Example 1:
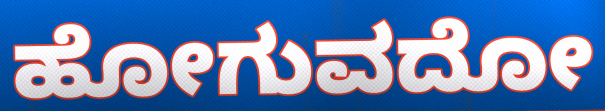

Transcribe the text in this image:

ಹೋಗುವದೋ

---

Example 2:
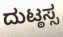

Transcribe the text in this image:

ದುಟ್ಠಸ್ಸ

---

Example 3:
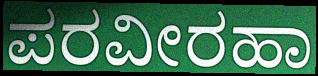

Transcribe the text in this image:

ಪರವೀರಹಾ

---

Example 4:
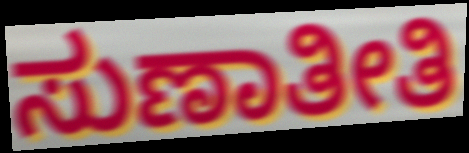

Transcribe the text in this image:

ಸುಣಾತೀತಿ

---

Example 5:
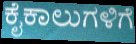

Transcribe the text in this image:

ಕೈಕಾಲುಗಳಿಗೆ